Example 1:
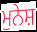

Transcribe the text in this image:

ਮੁਨੇਸ਼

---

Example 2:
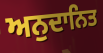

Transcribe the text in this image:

ਅਨੁਦਾਨਿਤ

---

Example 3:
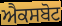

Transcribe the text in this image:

ਐਕਸਬੋਟ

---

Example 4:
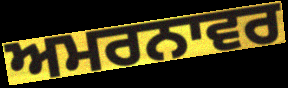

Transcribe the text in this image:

ਅਮਰਨਾਵਰ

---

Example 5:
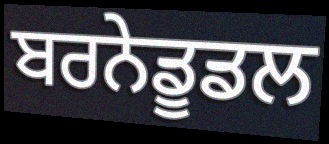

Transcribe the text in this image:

ਬਰਨੇਡੂਡਲ